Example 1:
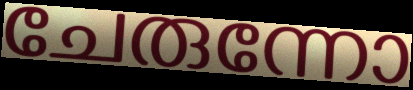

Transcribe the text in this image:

ചേരുന്നോ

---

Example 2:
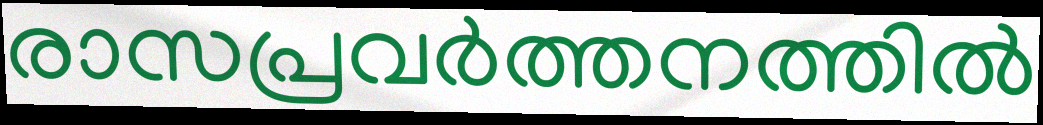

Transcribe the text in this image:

രാസപ്രവർത്തനത്തിൽ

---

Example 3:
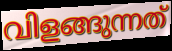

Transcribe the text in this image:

വിളങ്ങുന്നത്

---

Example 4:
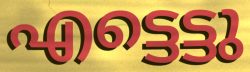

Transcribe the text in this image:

എട്ടെട്ടു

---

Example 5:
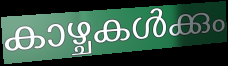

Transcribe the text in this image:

കാഴ്ചകൾക്കും